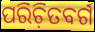
ପରିଚ଼ିତବର୍ଗ